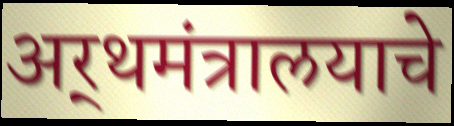
अर्थमंत्रालयाचे